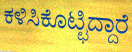
ಕಳಿಸಿಕೊಟ್ಟಿದ್ದಾರೆ